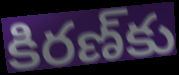
కిరణ్‌కు